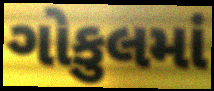
ગોકુલમાં